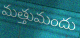
మత్తుమందు